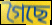
গৈছে